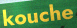
kouche